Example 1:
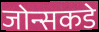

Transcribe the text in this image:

जोन्सकडे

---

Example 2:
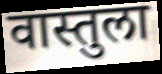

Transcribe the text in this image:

वास्तुला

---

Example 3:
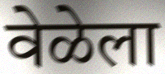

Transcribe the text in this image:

वेळेला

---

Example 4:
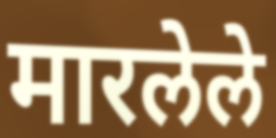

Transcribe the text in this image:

मारलेले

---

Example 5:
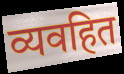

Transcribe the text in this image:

व्यवहित